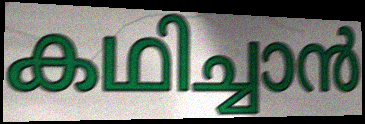
കഥിച്ചാൻ